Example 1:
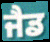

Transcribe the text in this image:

ਜੈਡ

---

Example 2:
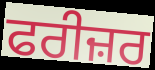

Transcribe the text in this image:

ਫਰੀਜ਼ਰ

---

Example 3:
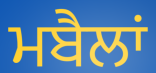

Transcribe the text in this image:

ਮਬੈਲਾਂ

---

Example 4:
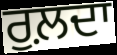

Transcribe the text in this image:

ਰੁਲ਼ਦਾ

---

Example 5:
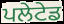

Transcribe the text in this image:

ਪਲੇਟੇਡ